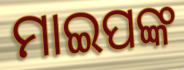
ମାଇପଙ୍କ